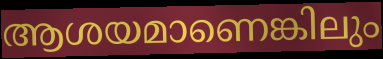
ആശയമാണെങ്കിലും